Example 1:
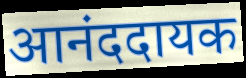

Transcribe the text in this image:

आनंददायक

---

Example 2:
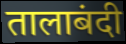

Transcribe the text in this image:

तालाबंदी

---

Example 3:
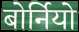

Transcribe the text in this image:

बोर्नियो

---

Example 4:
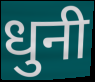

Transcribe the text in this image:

धुनी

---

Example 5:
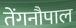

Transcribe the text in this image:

तेंगनौपाल